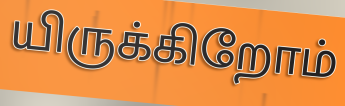
யிருக்கிறோம்